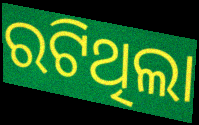
ରଟିଥିଲା